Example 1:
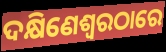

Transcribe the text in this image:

ଦକ୍ଷିଣେଶ୍ୱରଠାରେ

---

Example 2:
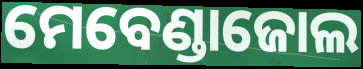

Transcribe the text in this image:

ମେବେଣ୍ଡାଜୋଲ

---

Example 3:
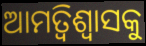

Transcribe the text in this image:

ଆମତ୍ବିଶ୍ୱାସକୁ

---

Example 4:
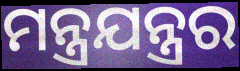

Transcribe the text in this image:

ମନ୍ତ୍ରଯନ୍ତ୍ରର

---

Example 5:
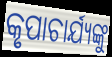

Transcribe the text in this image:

କୃପାଚାର୍ଯ୍ୟଙ୍କୁ